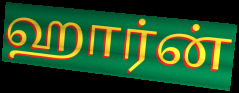
ஹார்ன்